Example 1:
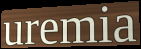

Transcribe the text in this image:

uremia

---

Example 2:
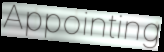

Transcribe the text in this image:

Appointing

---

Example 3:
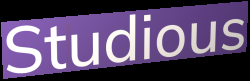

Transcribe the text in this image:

Studious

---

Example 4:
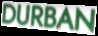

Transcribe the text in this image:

DURBAN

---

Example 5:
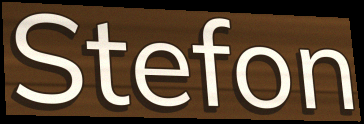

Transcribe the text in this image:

Stefon